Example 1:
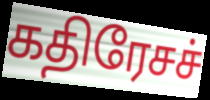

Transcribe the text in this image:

கதிரேசச்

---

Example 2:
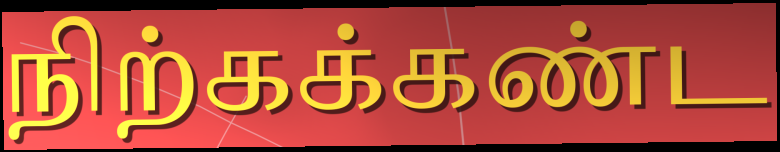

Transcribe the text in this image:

நிற்கக்கண்ட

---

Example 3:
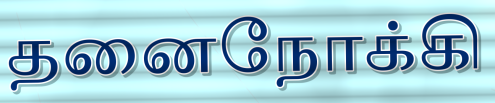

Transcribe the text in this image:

தனைநோக்கி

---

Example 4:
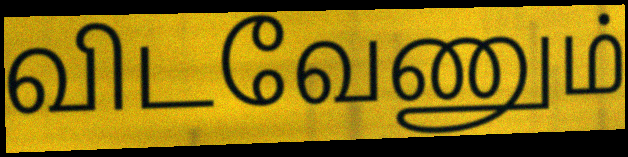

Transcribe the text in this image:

விடவேணும்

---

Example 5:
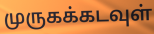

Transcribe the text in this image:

முருகக்கடவுள்